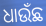
ଧାଉଁଛ